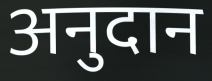
अनुदान